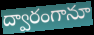
ద్వారంగానూ